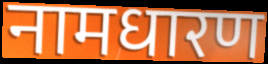
नामधारण